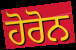
ਹੋਰੋਨ